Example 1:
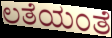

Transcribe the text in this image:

ಲತೆಯಂತೆ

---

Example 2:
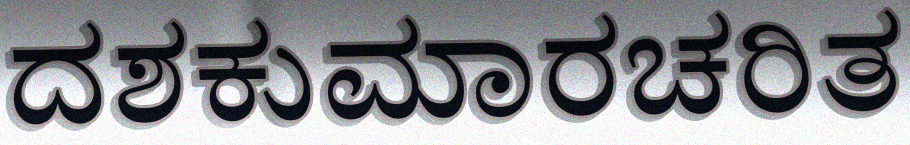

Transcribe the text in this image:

ದಶಕುಮಾರಚರಿತ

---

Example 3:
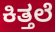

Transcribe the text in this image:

ಕಿತ್ತಲೆ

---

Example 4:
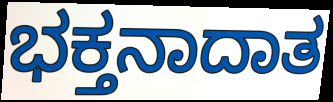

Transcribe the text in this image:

ಭಕ್ತನಾದಾತ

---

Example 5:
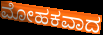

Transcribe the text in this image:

ಮೋಹಕವಾದ